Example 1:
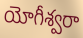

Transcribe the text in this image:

యోగీశ్వరా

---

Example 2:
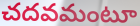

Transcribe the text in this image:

చదవమంటూ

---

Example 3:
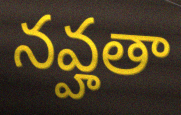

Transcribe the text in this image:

నవ్హతా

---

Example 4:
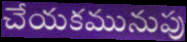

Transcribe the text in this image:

చేయకమునుపు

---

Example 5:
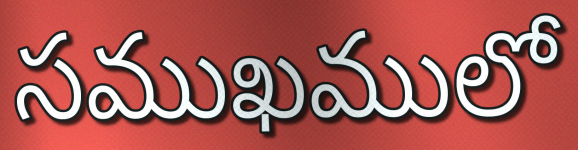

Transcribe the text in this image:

సముఖములో